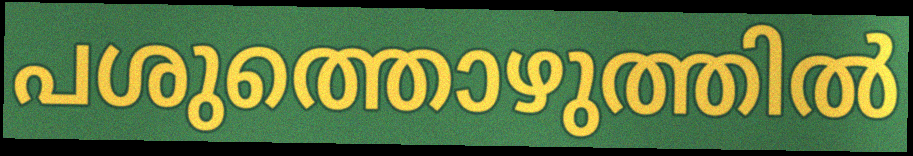
പശുത്തൊഴുത്തിൽ